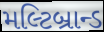
મલ્ટિબ્રાન્ડ